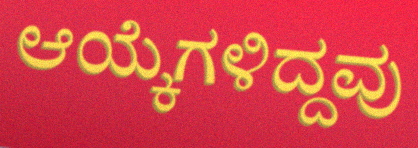
ಆಯ್ಕೆಗಳಿದ್ದವು